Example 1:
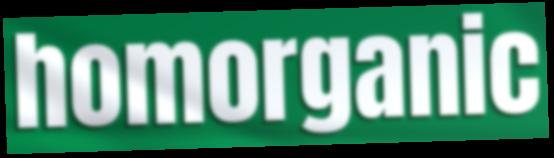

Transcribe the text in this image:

homorganic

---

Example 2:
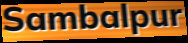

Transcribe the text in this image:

Sambalpur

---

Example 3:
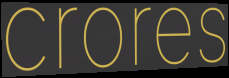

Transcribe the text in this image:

crores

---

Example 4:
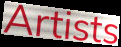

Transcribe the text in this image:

Artists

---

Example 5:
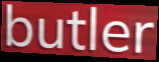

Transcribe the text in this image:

butler